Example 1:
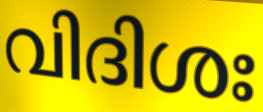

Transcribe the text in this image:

വിദിശഃ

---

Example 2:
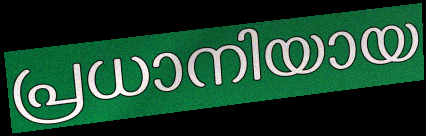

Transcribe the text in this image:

പ്രധാനിയായ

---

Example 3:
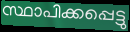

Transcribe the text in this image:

സ്ഥാപിക്കപ്പെട്ടു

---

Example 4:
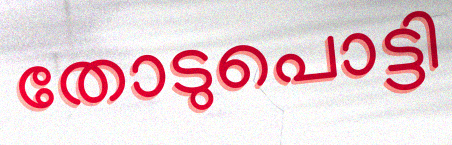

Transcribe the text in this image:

തോടുപൊട്ടി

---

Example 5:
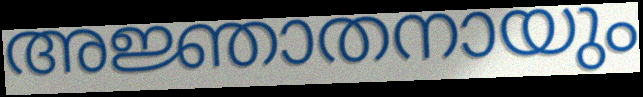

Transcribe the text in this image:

അജ്ഞാതനായും